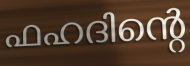
ഫഹദിന്റെ